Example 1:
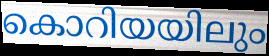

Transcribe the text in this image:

കൊറിയയിലും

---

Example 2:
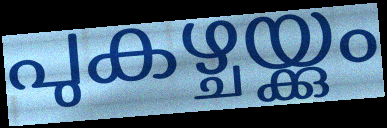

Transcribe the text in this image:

പുകഴ്ചയ്ക്കും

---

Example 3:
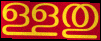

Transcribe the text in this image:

ള്ളതു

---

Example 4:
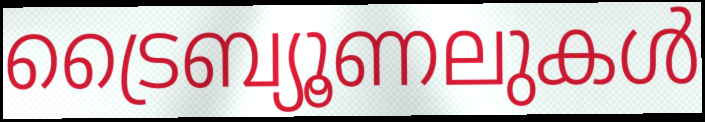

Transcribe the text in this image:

ട്രൈബ്യൂണലുകൾ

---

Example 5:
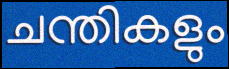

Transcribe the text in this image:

ചന്തികളും